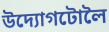
উদ্যোগটোলৈ